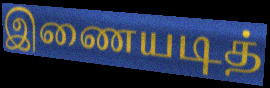
இணையடித்